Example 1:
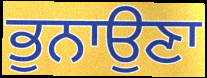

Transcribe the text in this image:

ਭੁਨਾਉਣਾ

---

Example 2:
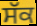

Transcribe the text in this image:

ਸੱਕ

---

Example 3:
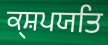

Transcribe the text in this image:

ਕ੍ਸ਼ਪਯਤਿ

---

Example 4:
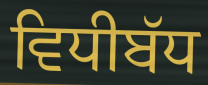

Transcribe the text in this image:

ਵਿਧੀਬੱਧ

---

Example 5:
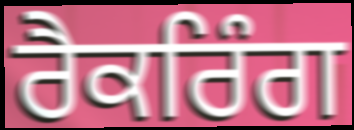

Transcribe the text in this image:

ਰੈਕਰਿੰਗ